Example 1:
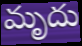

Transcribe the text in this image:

మృదు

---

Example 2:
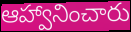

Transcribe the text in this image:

ఆహ్వానించారు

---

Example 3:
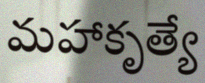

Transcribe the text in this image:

మహాకృత్యే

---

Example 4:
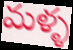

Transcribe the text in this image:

మళ్ళ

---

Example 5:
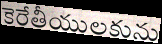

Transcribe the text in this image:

కెరేతీయులకును